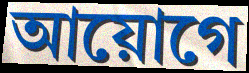
আয়োগে